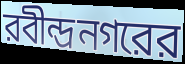
রবীন্দ্রনগরের